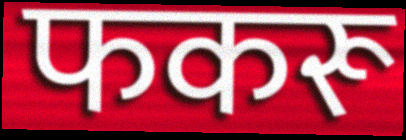
फकरू